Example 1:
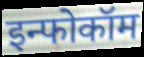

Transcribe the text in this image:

इन्फोकॉम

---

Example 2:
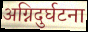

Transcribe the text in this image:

अग्निदुर्घटना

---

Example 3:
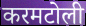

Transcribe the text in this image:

करमटोली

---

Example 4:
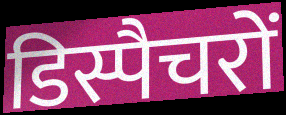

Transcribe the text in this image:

डिस्पैचरों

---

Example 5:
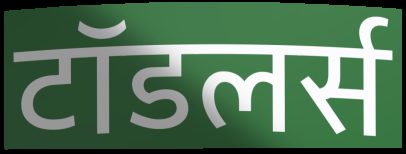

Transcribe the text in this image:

टॉडलर्स